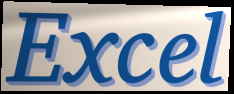
Excel